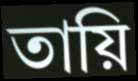
তায়ি